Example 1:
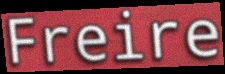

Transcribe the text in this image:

Freire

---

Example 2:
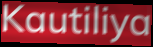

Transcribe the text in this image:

Kautiliya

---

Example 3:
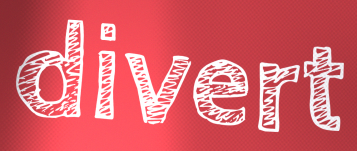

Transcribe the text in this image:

divert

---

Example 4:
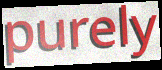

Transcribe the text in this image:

purely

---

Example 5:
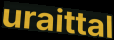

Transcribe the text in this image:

uraittal